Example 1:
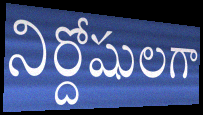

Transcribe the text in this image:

నిర్దోషులగా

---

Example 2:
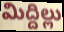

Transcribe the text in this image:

మిద్దిల్లు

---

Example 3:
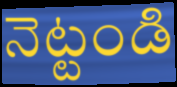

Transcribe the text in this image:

నెట్టండి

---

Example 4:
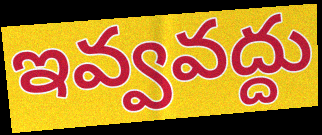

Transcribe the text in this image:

ఇవ్వవద్దు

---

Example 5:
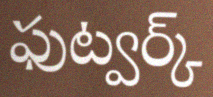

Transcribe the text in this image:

ఫుట్వర్క్